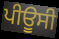
ਪੀਊਸੀ